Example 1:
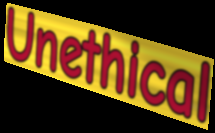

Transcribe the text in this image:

Unethical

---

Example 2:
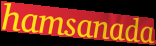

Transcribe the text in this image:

hamsanada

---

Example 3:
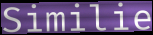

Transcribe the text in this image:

Similie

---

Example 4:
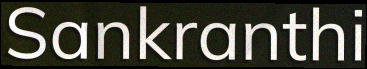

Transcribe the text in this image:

Sankranthi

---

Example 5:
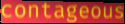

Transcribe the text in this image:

contageous